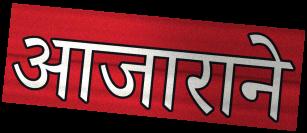
आजाराने